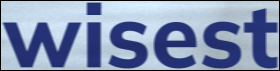
wisest